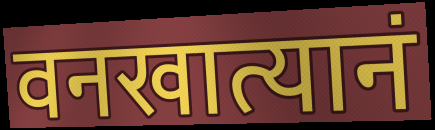
वनखात्यानं